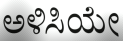
ಅಳಿಸಿಯೇ